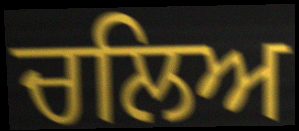
ਚਲਿਅ